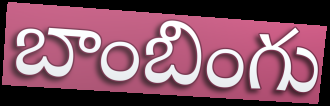
బాంబింగు